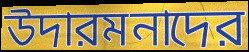
উদারমনাদের